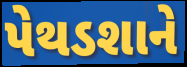
પેથડશાને